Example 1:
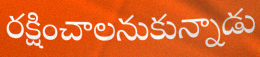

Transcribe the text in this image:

రక్షించాలనుకున్నాడు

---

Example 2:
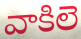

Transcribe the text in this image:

వాకిలె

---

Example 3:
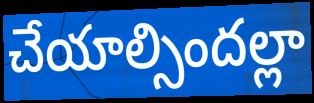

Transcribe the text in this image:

చేయాల్సిందల్లా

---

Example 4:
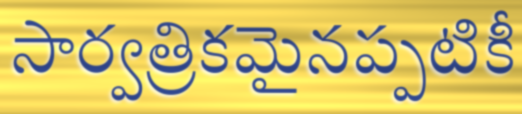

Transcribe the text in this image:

సార్వత్రికమైనప్పటికీ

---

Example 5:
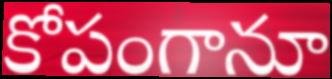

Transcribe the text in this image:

కోపంగానూ